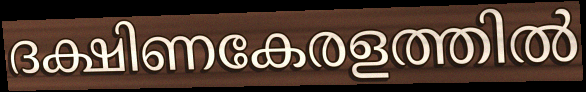
ദക്ഷിണകേരളത്തിൽ